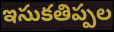
ఇసుకతిప్పల